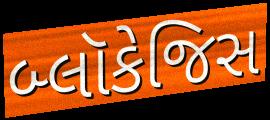
બ્લૉકેજિસ